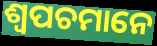
ଶ୍ୱପଚମାନେ